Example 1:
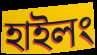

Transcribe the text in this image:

হাইলং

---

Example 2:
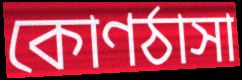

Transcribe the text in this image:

কোণঠাসা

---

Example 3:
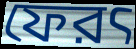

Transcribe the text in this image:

ফেরৎ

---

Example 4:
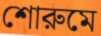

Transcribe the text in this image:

শোরুমে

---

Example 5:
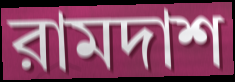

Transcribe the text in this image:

রামদাশ